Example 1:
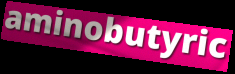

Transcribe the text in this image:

aminobutyric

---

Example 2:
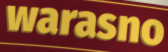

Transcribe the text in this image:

warasno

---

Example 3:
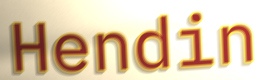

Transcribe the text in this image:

Hendin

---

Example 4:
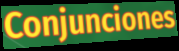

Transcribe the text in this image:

Conjunciones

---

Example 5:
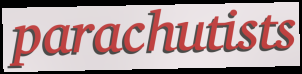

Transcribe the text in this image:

parachutists